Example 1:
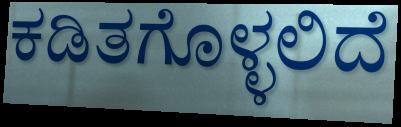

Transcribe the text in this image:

ಕಡಿತಗೊಳ್ಳಲಿದೆ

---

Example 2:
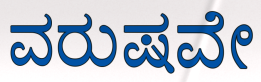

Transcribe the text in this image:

ವರುಷವೇ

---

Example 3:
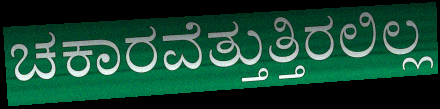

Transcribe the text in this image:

ಚಕಾರವೆತ್ತುತ್ತಿರಲಿಲ್ಲ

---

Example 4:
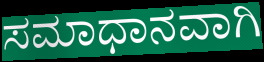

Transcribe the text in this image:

ಸಮಾಧಾನವಾಗಿ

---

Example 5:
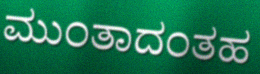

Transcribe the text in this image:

ಮುಂತಾದಂತಹ